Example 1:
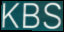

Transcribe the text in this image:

KBS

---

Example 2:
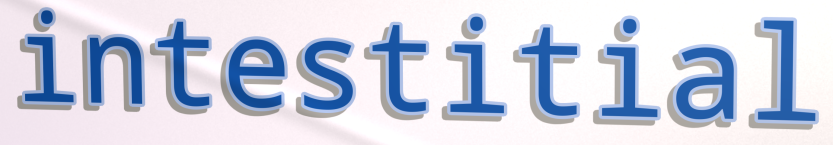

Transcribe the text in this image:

intestitial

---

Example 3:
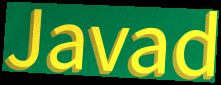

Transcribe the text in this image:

Javad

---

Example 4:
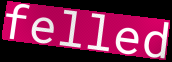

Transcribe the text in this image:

felled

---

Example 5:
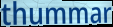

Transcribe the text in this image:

thummar